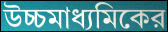
উচ্চমাধ্যমিকের